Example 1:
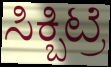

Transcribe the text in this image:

ಸಿಕ್ಬಿಟ್ರೆ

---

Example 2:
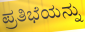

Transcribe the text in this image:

ಪ್ರತಿಭೆಯನ್ನು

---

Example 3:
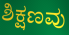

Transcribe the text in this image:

ಶಿಕ್ಷಣವು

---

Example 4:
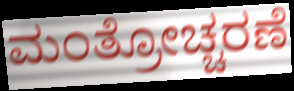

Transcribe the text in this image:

ಮಂತ್ರೋಚ್ಚರಣೆ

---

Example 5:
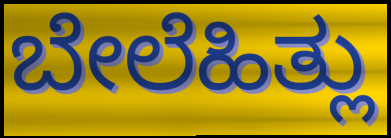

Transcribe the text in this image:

ಬೇಲೆಹಿತ್ಲು